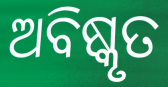
ଅବିଷ୍କୃତ